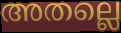
അതല്ലെ